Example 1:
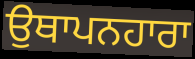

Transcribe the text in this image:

ਉਥਾਪਨਹਾਰਾ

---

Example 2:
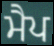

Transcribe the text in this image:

ਮੈਪ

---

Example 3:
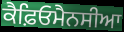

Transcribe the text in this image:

ਕੈਫ਼ਿਓਮੈਨਸੀਆ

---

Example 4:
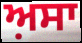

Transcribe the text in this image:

ਅ਼ਸਾ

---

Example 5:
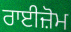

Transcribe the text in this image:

ਰਾਈਜ਼ੋਮ